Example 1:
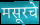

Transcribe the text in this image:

मसूरचे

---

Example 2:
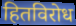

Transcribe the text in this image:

हितविरोध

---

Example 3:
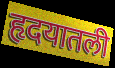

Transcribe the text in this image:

हृदयातली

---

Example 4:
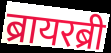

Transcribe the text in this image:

ब्रायरब्री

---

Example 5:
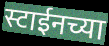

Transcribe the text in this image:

स्टाईनच्या